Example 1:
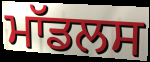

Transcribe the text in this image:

ਮਾੱਡਲਸ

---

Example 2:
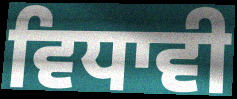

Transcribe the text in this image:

ਵਿਧਾਵੀ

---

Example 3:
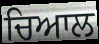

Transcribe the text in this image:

ਚਿਆਲ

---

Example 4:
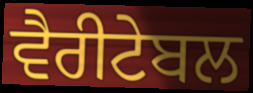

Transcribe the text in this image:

ਵੈਰੀਟੇਬਲ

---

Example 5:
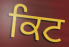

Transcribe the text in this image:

ਕਿਟ